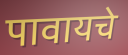
पावायचे